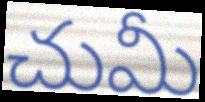
చుమీ